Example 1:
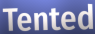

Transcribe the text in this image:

Tented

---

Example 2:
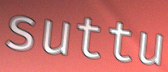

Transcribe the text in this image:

suttu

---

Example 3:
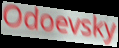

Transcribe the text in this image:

Odoevsky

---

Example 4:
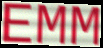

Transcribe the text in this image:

EMM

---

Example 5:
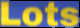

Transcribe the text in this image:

Lots